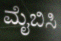
ಮೈಬಿಸಿ